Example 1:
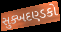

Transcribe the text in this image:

સુક્ખદણ્ડકો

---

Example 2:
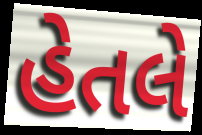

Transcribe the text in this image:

હેતલે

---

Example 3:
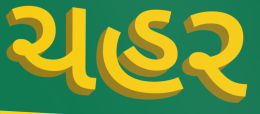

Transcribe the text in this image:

ચહર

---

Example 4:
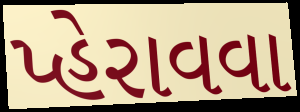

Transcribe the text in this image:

પ્હેરાવવા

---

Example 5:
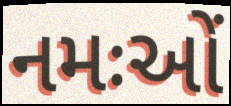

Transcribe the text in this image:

નમઃઓં